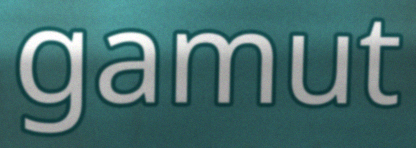
gamut